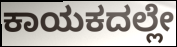
ಕಾಯಕದಲ್ಲೇ